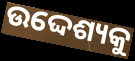
ଉଦ୍ଦେଶ୍ୟକୁ